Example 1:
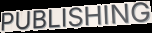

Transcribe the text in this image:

PUBLISHING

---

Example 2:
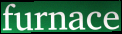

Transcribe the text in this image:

furnace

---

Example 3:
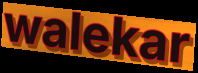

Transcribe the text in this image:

walekar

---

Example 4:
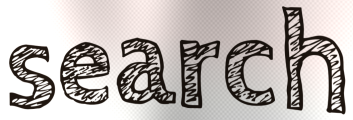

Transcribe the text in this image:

search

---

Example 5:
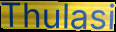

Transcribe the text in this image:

Thulasi